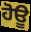
ਹੋਊ